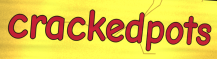
crackedpots